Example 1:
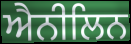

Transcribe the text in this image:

ਐਨੀਲਿਨ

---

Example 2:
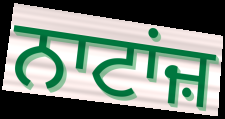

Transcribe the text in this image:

ਨਾਟਾਂਜ਼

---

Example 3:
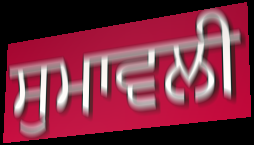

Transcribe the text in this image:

ਸੁਮਾਵਲੀ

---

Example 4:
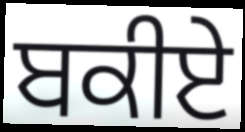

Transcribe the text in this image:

ਬਕੀਏ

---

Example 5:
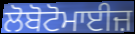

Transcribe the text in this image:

ਲੋਬੋਟੋਮਾਈਜ਼